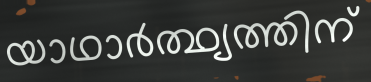
യാഥാർത്ഥ്യത്തിന്